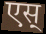
एस्